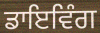
ਡਾਇਵਿੰਗ